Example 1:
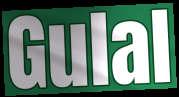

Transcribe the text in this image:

Gulal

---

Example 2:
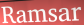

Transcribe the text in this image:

Ramsar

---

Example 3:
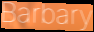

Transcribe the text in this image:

Barbary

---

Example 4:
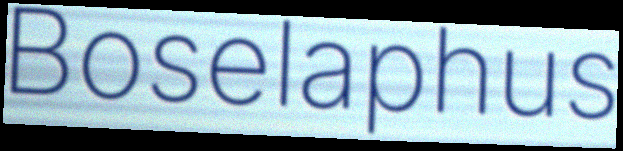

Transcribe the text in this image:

Boselaphus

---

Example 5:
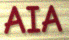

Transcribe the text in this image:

AIA